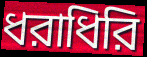
ধরাধিরি